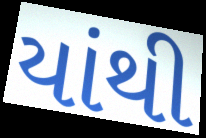
યાંથી